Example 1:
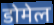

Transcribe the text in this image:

डोमेल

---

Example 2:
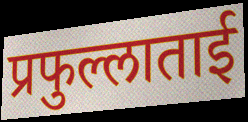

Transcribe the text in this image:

प्रफुल्लाताई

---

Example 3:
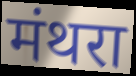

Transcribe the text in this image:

मंथरा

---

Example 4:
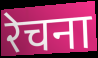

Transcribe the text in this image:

रेचना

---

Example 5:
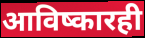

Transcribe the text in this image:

आविष्कारही